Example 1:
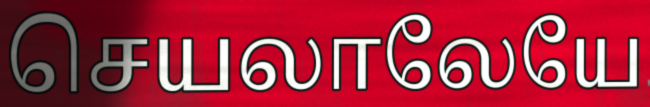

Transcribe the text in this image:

செயலாலேயே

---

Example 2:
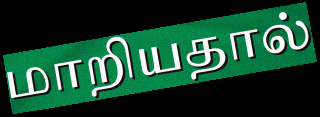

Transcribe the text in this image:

மாறியதால்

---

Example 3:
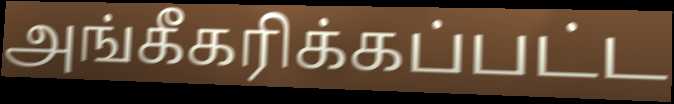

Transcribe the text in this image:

அங்கீகரிக்கப்பட்ட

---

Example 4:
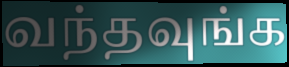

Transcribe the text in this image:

வந்தவுங்க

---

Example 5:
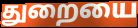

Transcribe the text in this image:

துறையை